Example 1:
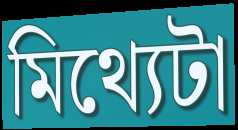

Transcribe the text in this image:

মিথ্যেটা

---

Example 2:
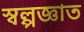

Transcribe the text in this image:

স্বল্পজ্ঞাত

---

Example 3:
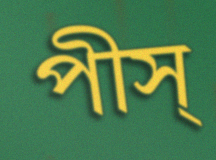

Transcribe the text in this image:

পীস্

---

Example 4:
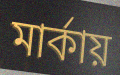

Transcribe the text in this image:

মার্কায়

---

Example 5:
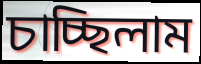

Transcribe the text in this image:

চাচ্ছিলাম